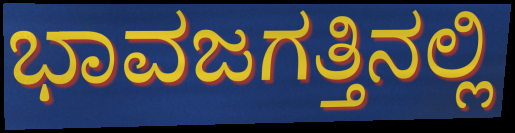
ಭಾವಜಗತ್ತಿನಲ್ಲಿ